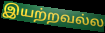
இயற்றவல்ல